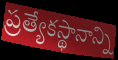
ప్రత్యేకస్థానాన్ని